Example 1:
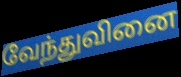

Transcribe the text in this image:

வேந்துவினை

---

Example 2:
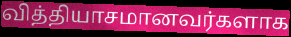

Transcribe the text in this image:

வித்தியாசமானவர்களாக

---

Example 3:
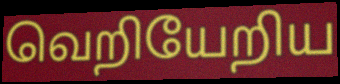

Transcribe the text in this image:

வெறியேறிய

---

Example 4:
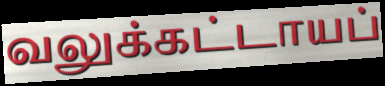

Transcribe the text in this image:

வலுக்கட்டாயப்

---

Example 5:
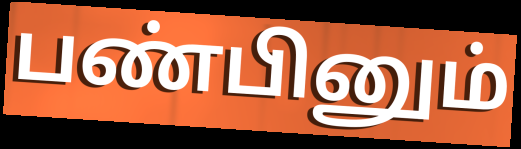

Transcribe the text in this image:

பண்பினும்